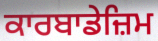
ਕਾਰਬਾਡੇਜ਼ਿਮ